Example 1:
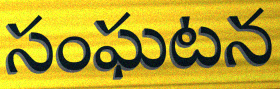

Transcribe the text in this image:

సంఘటన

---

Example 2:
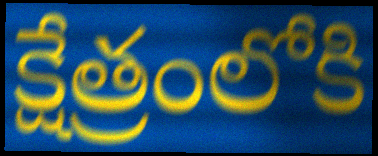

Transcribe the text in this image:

క్షేత్రంలోకి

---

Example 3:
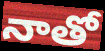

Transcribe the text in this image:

నాతో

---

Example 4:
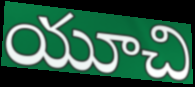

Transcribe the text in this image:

యూచి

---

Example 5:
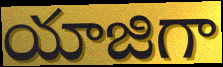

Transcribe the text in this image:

యాజిగా